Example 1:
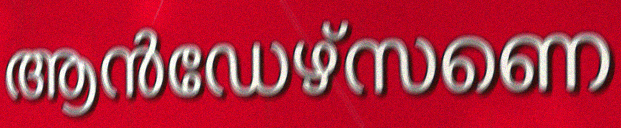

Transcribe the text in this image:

ആൻഡേഴ്സണെ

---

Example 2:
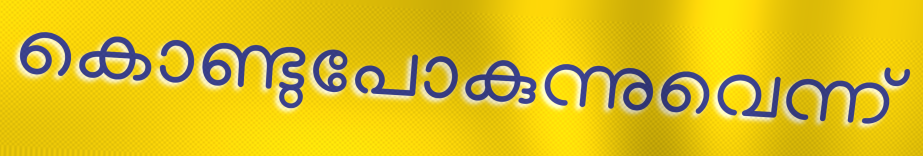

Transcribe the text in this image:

കൊണ്ടുപോകുന്നുവെന്ന്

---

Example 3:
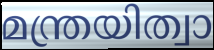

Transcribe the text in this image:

മന്ത്രയിത്വാ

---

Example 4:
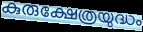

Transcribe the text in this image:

കുരുക്ഷേത്രയുദ്ധം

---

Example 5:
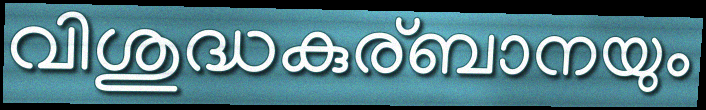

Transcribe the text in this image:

വിശുദ്ധകുര്ബാനയും